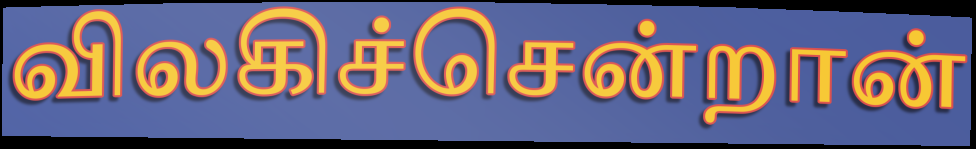
விலகிச்சென்றான்